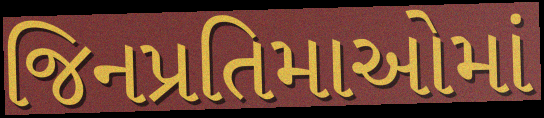
જિનપ્રતિમાઓમાં